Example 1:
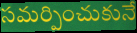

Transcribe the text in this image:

సమర్పించుకునే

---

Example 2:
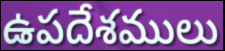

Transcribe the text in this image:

ఉపదేశములు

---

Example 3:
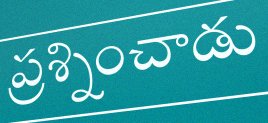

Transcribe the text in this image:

ప్రశ్నించాడు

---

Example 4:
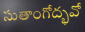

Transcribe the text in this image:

సుతాంగోద్భవో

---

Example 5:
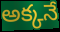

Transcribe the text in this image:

అక్కనే